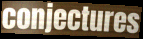
conjectures